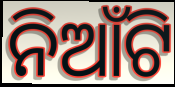
ନିଆଁଟି